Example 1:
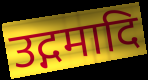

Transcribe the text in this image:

उद्गमादि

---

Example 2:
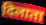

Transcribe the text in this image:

दिलाता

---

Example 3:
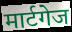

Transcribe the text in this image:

मार्टगेज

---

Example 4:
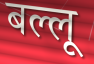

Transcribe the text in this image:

बल्लू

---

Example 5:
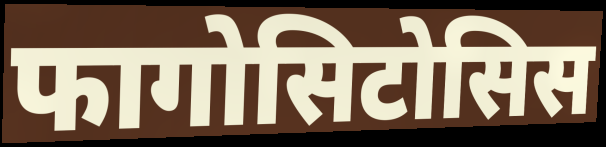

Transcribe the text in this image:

फागोसिटोसिस